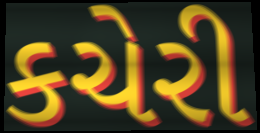
કચેરી